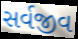
સર્વજીવ